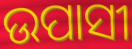
ଉପାସୀ